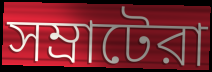
সম্রাটেরা